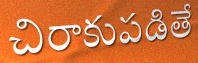
చిరాకుపడితే